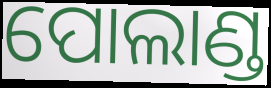
ପୋଲାଣ୍ଡ